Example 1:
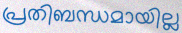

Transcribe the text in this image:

പ്രതിബന്ധമായില്ല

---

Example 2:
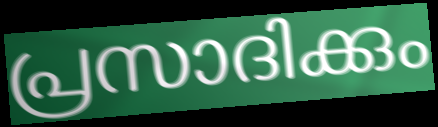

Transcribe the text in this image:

പ്രസാദിക്കും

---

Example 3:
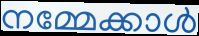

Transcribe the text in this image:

നമ്മേക്കാൾ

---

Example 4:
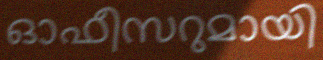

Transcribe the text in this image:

ഓഫീസറുമായി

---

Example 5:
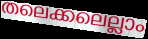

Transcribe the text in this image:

തലെക്കലെല്ലാം